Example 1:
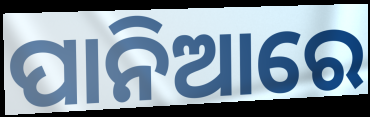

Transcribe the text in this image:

ପାନିଆରେ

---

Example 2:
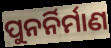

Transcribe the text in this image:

ପୁନର୍ନିର୍ମାଣ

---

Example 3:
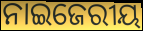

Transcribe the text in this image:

ନାଇଜେରୀୟ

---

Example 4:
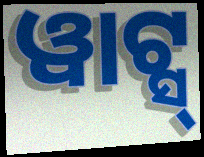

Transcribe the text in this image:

ୱାଟ୍ସ୍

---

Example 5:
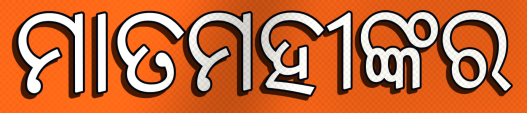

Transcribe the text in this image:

ମାତମହୀଙ୍କର